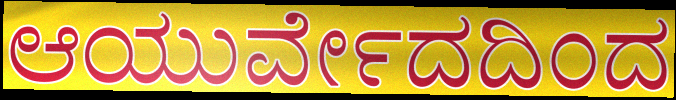
ಆಯುರ್ವೇದದಿಂದ